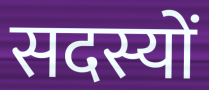
सदस्यों